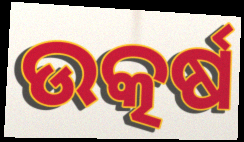
ଉତ୍କର୍ଷ